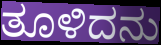
ತೂಳಿದನು